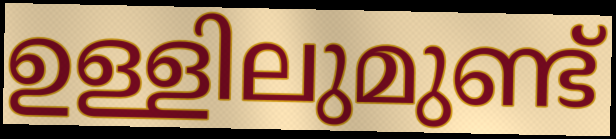
ഉള്ളിലുമുണ്ട്